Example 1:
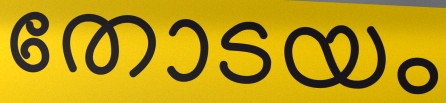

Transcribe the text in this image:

തോടയം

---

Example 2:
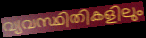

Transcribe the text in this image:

വ്യവസ്ഥിതികളിലും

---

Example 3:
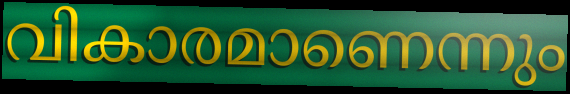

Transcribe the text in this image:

വികാരമാണെന്നും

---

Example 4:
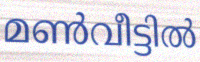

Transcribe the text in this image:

മൺവീട്ടിൽ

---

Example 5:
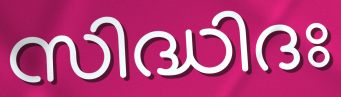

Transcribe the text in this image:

സിദ്ധിദഃ